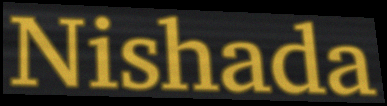
Nishada